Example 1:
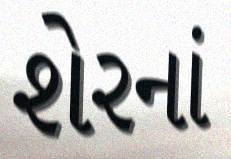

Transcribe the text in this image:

શેરનાં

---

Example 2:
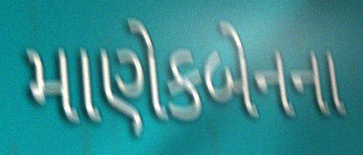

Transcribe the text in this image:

માણેકબેનના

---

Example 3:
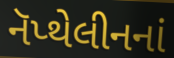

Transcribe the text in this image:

નૅપ્થેલીનનાં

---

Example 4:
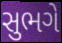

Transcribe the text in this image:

સુભગે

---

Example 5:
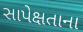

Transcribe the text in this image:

સાપેક્ષતાના